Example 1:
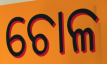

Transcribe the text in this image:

ଚୋଳ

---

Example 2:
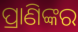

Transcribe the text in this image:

ପ୍ରାଣିଙ୍କର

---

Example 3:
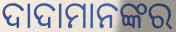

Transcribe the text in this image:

ଦାଦାମାନଙ୍କର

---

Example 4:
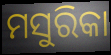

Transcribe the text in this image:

ମସୁରିକା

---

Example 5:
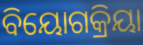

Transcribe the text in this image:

ବିୟୋଗକ୍ରିୟା